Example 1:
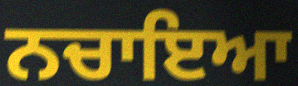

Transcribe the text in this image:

ਨਚਾਇਆ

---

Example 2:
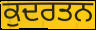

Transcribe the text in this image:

ਕੁਦਰਤਨ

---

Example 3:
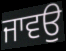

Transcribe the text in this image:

ਜਾਵਉ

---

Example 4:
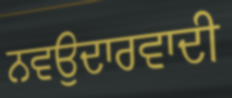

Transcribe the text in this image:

ਨਵਉਦਾਰਵਾਦੀ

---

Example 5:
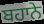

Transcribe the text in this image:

ਬਹਾਨੇ